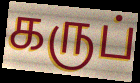
கருப்